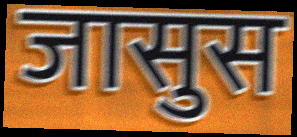
जासुस